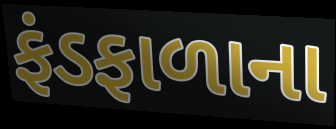
ફંડફાળાના